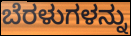
ಬೆರಳುಗಳನ್ನು